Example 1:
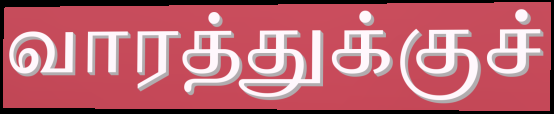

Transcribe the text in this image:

வாரத்துக்குச்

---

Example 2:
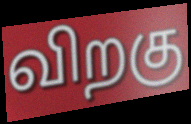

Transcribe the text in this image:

விறகு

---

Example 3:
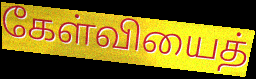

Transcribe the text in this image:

கேள்வியைத்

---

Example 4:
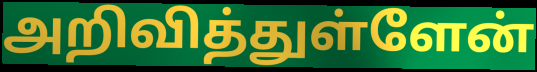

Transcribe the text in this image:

அறிவித்துள்ளேன்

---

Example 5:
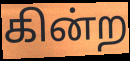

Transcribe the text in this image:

கின்ற